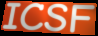
ICSF